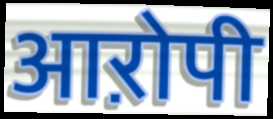
आऱोपी